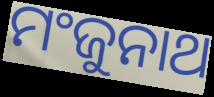
ମଂଜୁନାଥ